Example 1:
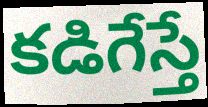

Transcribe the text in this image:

కడిగేస్తే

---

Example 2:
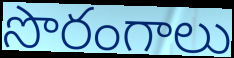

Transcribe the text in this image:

సొరంగాలు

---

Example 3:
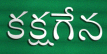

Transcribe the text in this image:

కక్షగేన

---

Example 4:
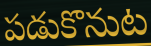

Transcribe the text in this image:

పడుకొనుట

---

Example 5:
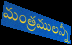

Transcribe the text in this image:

మంత్రములన్నీ